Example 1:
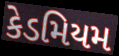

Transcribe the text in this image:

કેડમિયમ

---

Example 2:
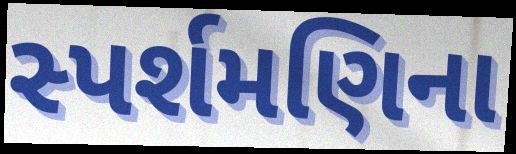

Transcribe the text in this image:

સ્પર્શમણિના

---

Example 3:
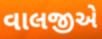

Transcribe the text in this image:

વાલજીએ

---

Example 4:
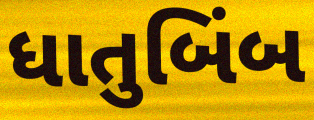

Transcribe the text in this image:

ધાતુબિંબ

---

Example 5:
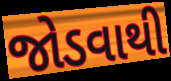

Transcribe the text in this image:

જોડવાથી